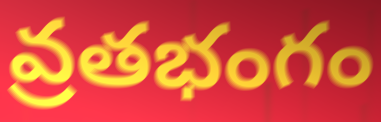
వ్రతభంగం